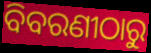
ବିବରଣୀଠାରୁ